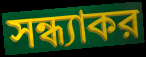
সন্ধ্যাকর